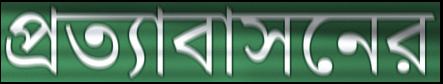
প্রত্যাবাসনের